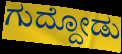
ಗುದ್ದೋಡು